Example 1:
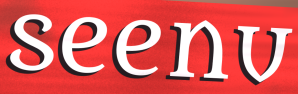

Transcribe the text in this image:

seenu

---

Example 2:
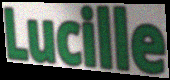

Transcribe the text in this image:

Lucille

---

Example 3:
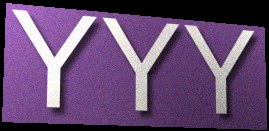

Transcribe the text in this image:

YYY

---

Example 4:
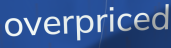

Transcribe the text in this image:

overpriced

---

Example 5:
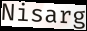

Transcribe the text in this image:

Nisarg